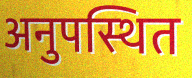
अनुपस्थित